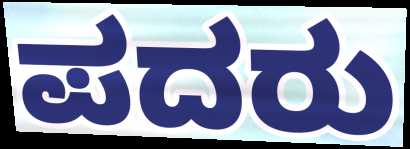
ಪದರು